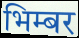
भिम्बर